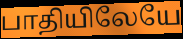
பாதியிலேயே